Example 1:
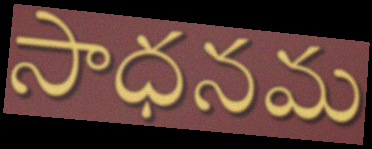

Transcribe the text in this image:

సాధనమ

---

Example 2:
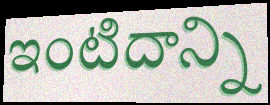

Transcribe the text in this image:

ఇంటిదాన్ని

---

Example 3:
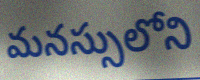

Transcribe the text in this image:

మనస్సులోని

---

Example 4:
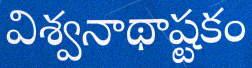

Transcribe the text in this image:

విశ్వనాథాష్టకం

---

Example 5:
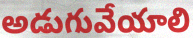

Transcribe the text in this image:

అడుగువేయాలి